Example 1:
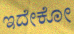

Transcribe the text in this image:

ಇದೇಕೋ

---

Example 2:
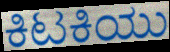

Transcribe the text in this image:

ಕಿಟಕಿಯು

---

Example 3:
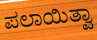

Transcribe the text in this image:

ಪಲಾಯಿತ್ವಾ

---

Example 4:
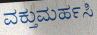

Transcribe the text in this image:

ವಕ್ತುಮರ್ಹಸಿ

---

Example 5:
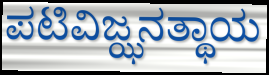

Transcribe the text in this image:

ಪಟಿವಿಜ್ಝನತ್ಥಾಯ